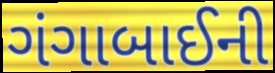
ગંગાબાઈની